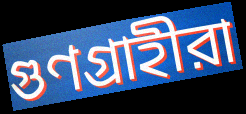
গুণগ্রাহীরা